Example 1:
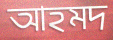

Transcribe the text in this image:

আহমদ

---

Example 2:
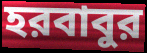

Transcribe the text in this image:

হরবাবুর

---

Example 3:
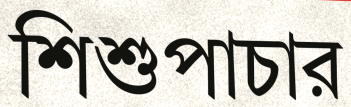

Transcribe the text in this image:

শিশুপাচার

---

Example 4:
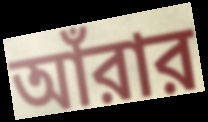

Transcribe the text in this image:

আঁরার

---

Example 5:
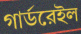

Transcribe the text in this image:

গার্ডরেইল